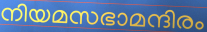
നിയമസഭാമന്ദിരം